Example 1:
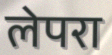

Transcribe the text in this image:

लेपरा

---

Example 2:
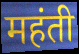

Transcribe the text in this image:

महंती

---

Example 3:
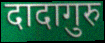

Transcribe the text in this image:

दादागुरु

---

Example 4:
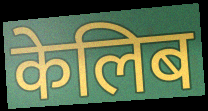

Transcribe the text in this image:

केलिब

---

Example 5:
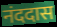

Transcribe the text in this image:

नंददास